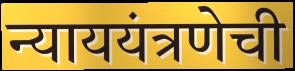
न्याययंत्रणेची